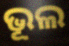
ଭୂଲ